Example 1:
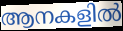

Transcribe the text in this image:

ആനകളിൽ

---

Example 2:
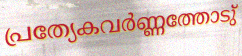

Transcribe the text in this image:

പ്രത്യേകവർണ്ണത്തോടു്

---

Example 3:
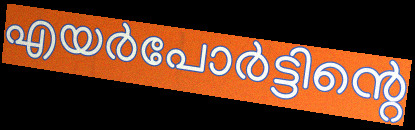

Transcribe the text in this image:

എയർപോർട്ടിന്റെ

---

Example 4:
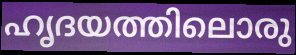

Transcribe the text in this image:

ഹൃദയത്തിലൊരു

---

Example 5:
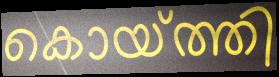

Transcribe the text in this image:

കൊയ്‌ത്തി